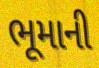
ભૂમાની